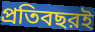
প্রতিবছরই